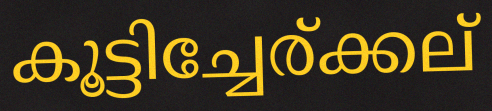
കൂട്ടിച്ചേര്ക്കല്